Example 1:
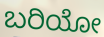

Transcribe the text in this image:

ಬರಿಯೋ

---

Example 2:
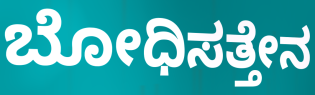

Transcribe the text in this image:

ಬೋಧಿಸತ್ತೇನ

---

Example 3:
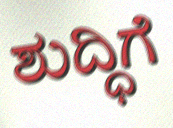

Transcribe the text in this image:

ಶುದ್ಧಿಗೆ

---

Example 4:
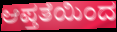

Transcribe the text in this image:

ಆಪ್ತತೆಯಿಂದ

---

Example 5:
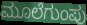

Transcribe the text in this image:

ಮೂಲೆಗುಂಪು